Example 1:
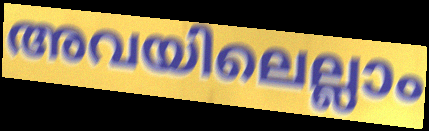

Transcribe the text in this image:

അവയിലെല്ലാം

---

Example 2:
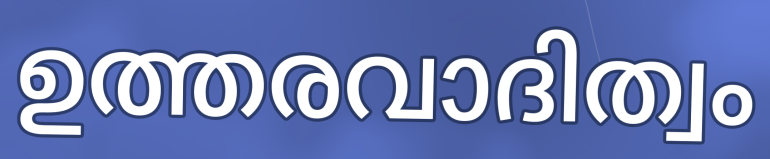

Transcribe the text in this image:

ഉത്തരവാദിത്വം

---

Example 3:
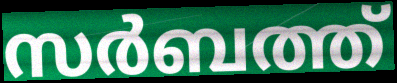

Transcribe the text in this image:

സർബത്ത്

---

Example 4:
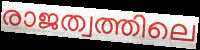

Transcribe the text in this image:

രാജത്വത്തിലെ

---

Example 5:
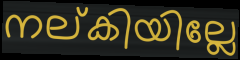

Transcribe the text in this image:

നല്കിയില്ലേ